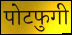
पोटफुगी